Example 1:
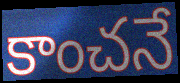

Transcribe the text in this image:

కాంచనే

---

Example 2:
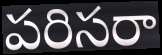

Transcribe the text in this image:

పరిసరా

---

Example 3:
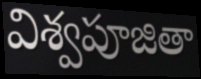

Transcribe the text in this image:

విశ్వపూజితా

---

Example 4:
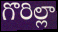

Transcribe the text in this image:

గొరిల్లా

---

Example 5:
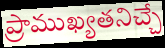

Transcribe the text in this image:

ప్రాముఖ్యతనిచ్చే